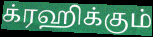
க்ரஹிக்கும்